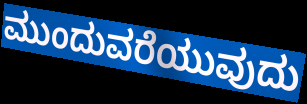
ಮುಂದುವರೆಯುವುದು